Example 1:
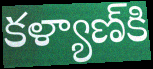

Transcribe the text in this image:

కళ్యాణ్‍కి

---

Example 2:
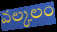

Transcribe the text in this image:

వల్కలం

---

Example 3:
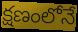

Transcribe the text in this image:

క్షణంలోనే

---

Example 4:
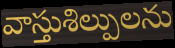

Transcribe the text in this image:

వాస్తుశిల్పులను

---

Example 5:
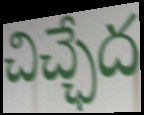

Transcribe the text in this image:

చిచ్ఛేద